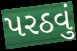
પરઠવું